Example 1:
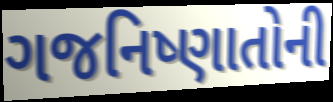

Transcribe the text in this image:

ગજનિષ્ણાતોની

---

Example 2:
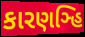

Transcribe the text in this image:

કારણઞ્હિ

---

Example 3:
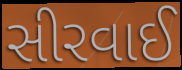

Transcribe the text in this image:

સીરવાઈ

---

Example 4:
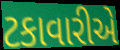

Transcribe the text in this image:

ટકાવારીએ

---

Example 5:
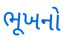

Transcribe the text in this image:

ભૂખનો